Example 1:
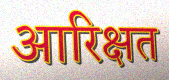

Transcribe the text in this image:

आरिक्षत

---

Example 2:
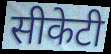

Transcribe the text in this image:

सीकेटी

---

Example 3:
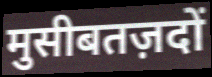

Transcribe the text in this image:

मुसीबतज़दों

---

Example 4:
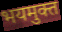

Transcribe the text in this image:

भयमुक्त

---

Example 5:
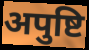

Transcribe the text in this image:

अपुष्टि